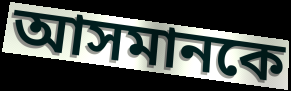
আসমানকে